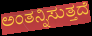
ಅಂತನ್ನಿಸುತ್ತದೆ